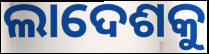
ଲାଦେଶକୁ